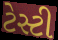
ટેસ્ટી